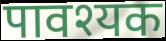
पावश्यक